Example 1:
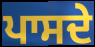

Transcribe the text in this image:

ਪਾਸਦੇ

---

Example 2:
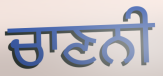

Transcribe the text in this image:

ਚਾਣਨੀ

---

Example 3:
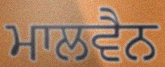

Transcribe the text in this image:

ਮਾਲਵੈਨ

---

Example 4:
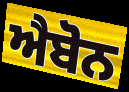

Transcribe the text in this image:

ਐਬੋਨ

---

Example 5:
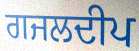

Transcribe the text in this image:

ਗਜਲਦੀਪ